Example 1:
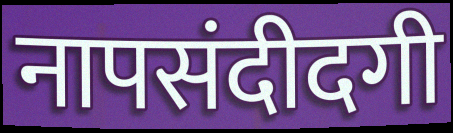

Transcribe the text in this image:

नापसंदीदगी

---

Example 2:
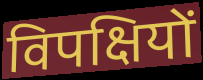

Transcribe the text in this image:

विपक्षियों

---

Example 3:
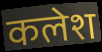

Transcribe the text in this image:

कलेश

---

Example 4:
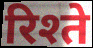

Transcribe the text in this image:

रिश्ते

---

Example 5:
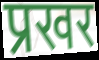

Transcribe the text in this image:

प्रखर